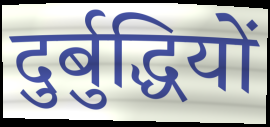
दुर्बुद्धियों